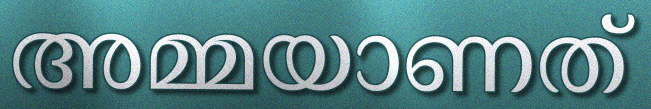
അമ്മയാണത്